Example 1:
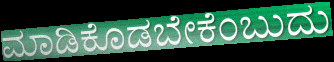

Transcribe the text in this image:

ಮಾಡಿಕೊಡಬೇಕೆಂಬುದು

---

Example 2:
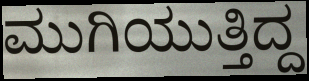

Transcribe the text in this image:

ಮುಗಿಯುತ್ತಿದ್ದ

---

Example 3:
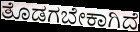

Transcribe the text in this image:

ತೊಡಗಬೇಕಾಗಿದೆ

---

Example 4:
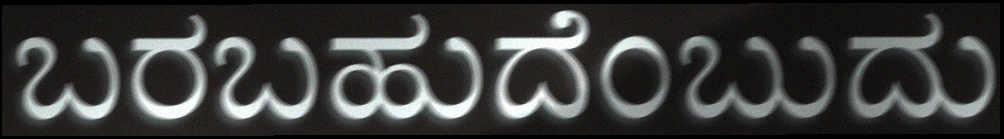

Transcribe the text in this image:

ಬರಬಹುದೆಂಬುದು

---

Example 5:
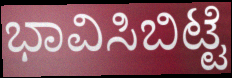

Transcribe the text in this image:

ಭಾವಿಸಿಬಿಟ್ಟೆ